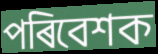
পৰিবেশক